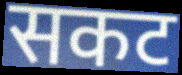
सकट